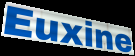
Euxine